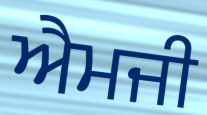
ਐਮਜੀ